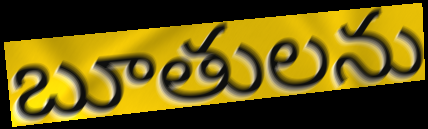
బూతులను